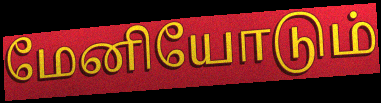
மேனியோடும்